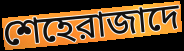
শেহেরাজাদে